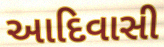
આદિવાસી